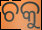
ଚକୁ